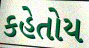
કહેતોય